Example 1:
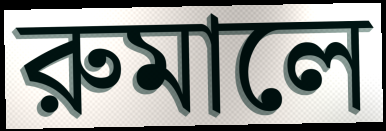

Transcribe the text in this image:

রুমালে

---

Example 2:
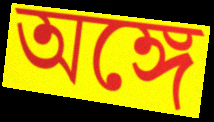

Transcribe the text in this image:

অঙ্গে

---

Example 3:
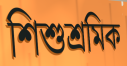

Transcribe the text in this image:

শিশুশ্রমিক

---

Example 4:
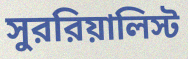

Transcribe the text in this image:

সুররিয়ালিস্ট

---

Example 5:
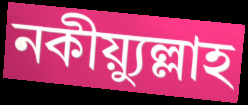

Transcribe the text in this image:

নকীয়্যুল্লাহ